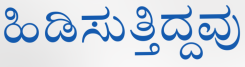
ಹಿಡಿಸುತ್ತಿದ್ದವು